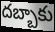
దబ్బాకు